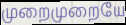
முறைமுறையே